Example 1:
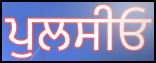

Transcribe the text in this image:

ਪੁਲਸੀਓ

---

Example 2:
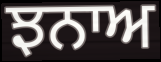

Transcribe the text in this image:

ਝਨਾਅ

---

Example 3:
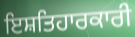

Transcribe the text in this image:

ਇਸ਼ਤਿਹਾਰਕਾਰੀ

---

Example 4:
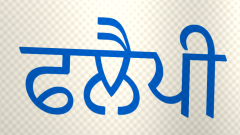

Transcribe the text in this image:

ਫਲੈਪੀ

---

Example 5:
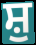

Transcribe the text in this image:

ਸ਼ੁ